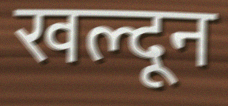
खल्दून